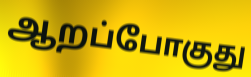
ஆறப்போகுது